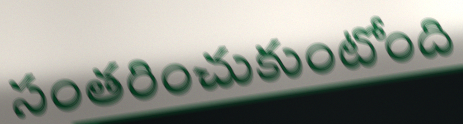
సంతరించుకుంటోంది